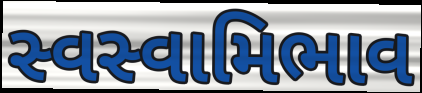
સ્વસ્વામિભાવ